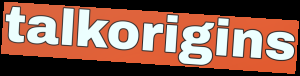
talkorigins